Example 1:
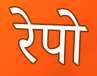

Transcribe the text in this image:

रेपो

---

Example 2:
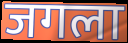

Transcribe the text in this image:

जगला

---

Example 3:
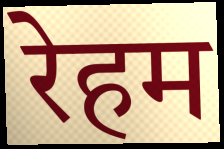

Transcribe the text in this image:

रेहम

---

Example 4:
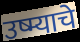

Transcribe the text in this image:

उष्म्याचे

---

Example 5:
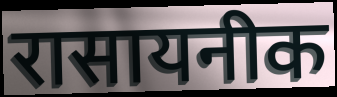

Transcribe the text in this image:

रासायनीक